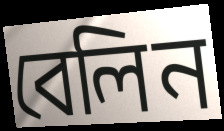
বেলিন